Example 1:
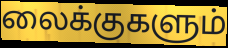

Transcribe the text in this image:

லைக்குகளும்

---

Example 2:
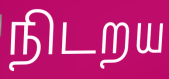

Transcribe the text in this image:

நிடறய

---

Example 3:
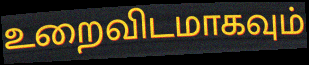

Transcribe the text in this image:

உறைவிடமாகவும்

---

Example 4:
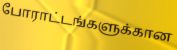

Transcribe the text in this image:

போராட்டங்களுக்கான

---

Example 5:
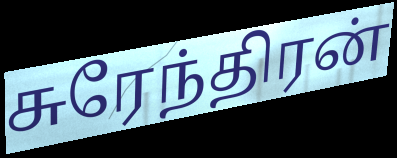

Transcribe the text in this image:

சுரேந்திரன்